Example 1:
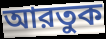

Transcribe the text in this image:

আরতুক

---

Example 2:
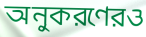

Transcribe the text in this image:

অনুকরণেরও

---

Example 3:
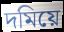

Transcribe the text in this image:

দমিয়ে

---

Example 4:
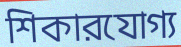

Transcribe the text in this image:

শিকারযোগ্য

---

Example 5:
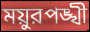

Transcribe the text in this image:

ময়ুরপঙ্খী